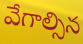
వేగాల్సిన